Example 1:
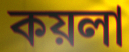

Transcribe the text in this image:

কয়লা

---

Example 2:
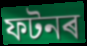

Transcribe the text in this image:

ফটনৰ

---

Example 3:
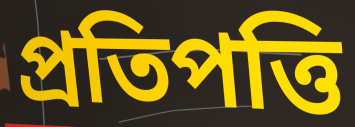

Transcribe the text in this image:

প্ৰতিপত্তি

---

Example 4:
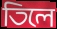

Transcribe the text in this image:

তিলে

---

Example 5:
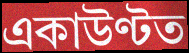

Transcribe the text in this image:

একাউণ্টত